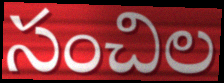
సంచిల